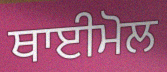
ਥਾਈਮੋਲ